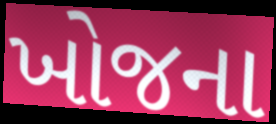
ખોજના